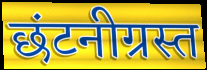
छंटनीग्रस्त